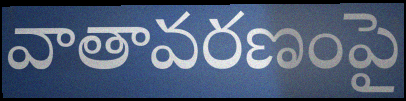
వాతావరణంపై